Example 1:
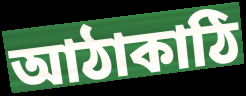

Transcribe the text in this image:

আঠাকাঠি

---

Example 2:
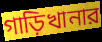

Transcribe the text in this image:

গাড়িখানার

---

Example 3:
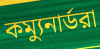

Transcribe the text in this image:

কম্যুনার্ডরা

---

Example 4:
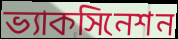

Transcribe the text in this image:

ভ্যাকসিনেশন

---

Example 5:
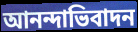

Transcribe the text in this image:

আনন্দাভিবাদন